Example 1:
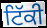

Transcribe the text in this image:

ਟਿੱਕੀ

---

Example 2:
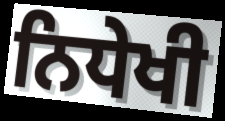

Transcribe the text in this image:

ਨਿਧੇਖੀ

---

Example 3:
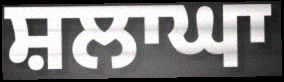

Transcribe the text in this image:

ਸ਼ਲਾਘਾ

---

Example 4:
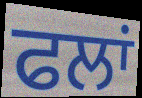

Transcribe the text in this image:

ਫਲਾਂ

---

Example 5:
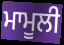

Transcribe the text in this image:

ਮਾਮੂਲੀ